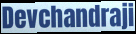
Devchandraji